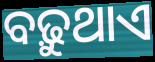
ବଢ଼ୁଥାଏ